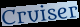
Cruiser